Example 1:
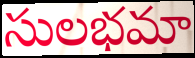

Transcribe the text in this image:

సులభమా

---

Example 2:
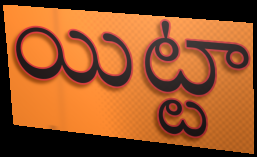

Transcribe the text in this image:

యిట్టా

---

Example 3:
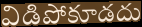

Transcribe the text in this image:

విడిపోకూడదు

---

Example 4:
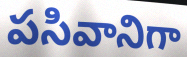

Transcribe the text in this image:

పసివానిగా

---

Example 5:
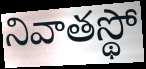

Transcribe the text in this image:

నివాతస్థో